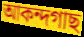
আকন্দগাছ